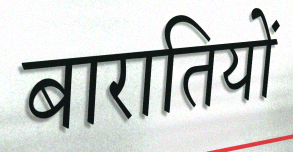
बारातियों